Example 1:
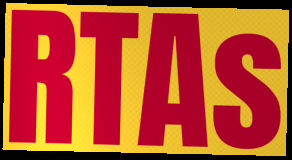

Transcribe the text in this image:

RTAs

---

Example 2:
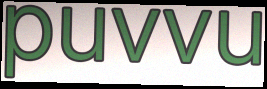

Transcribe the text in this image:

puvvu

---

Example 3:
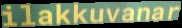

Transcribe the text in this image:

ilakkuvanar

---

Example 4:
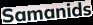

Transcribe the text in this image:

Samanids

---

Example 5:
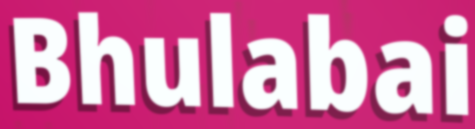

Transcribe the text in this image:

Bhulabai